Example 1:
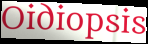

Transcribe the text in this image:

Oidiopsis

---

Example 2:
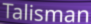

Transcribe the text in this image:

Talisman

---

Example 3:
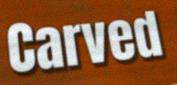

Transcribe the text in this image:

Carved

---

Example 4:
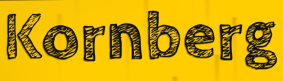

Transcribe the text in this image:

Kornberg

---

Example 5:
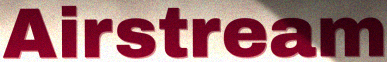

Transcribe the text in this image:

Airstream